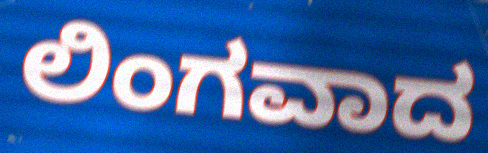
ಲಿಂಗವಾದ